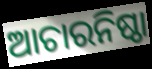
ଆଚାରନିଷ୍ଠା